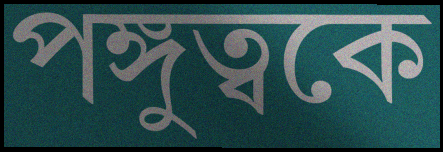
পঙ্গুত্বকে